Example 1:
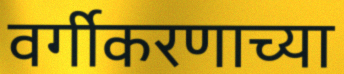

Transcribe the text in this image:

वर्गीकरणाच्या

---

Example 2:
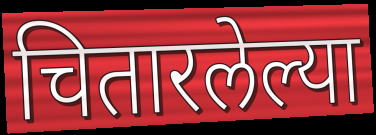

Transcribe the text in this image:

चितारलेल्या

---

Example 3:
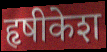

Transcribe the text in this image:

हृषीकेश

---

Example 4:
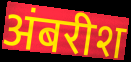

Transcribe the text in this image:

अंबरीश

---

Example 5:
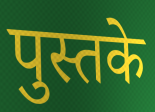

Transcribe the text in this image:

पुस्तके